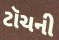
ટૉચની